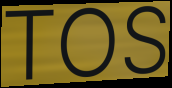
TOS